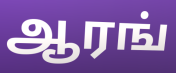
ஆரங்